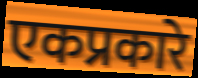
एकप्रकारे